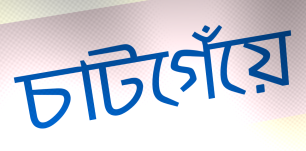
চাটগেঁয়ে